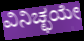
ವಿನಿಚ್ಛಯೇ